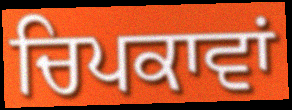
ਚਿਪਕਾਵਾਂ